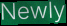
Newly